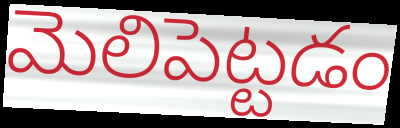
మెలిపెట్టడం